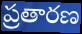
ప్రతారణ